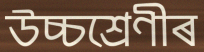
উচ্চশ্ৰেণীৰ